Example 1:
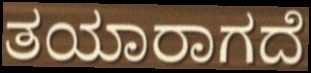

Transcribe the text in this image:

ತಯಾರಾಗದೆ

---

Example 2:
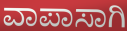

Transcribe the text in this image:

ವಾಪಾಸಾಗಿ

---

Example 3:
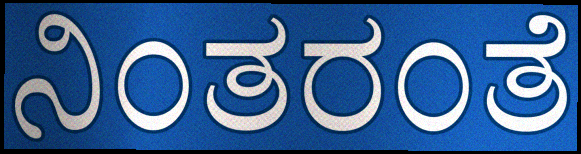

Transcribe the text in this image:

ನಿಂತರಂತೆ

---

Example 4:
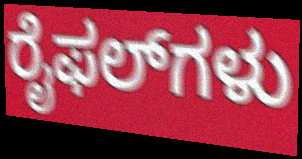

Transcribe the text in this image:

ರೈಫಲ್‌ಗಳು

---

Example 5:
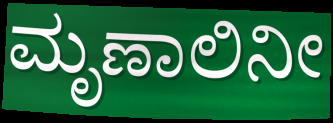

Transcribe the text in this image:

ಮೃಣಾಲಿನೀ